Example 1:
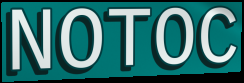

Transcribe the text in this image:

NOTOC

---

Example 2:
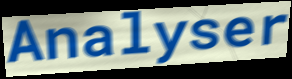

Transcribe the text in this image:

Analyser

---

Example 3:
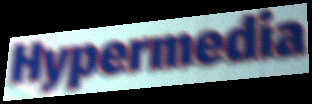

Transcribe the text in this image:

Hypermedia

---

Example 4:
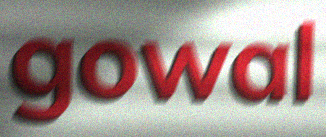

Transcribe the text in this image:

gowal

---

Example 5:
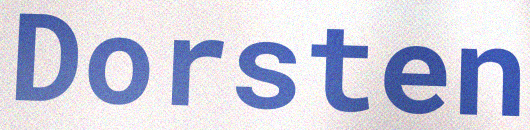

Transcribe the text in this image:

Dorsten